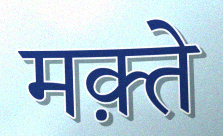
मक़्ते